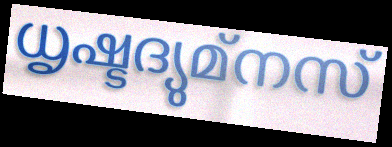
ധൃഷ്ടദ്യുമ്നസ്